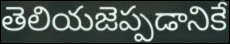
తెలియజెప్పడానికే